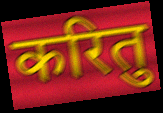
करितु